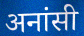
अनांसी